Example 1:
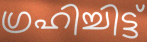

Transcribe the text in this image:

ഗ്രഹിച്ചിട്ട്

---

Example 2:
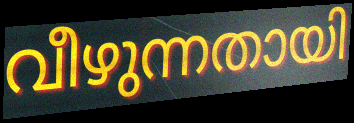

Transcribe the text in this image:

വീഴുന്നതായി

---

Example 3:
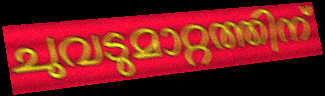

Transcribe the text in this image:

ചുവടുമാറ്റത്തിന്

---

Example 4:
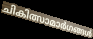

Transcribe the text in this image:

ചികിത്സാമാർഗങ്ങൾ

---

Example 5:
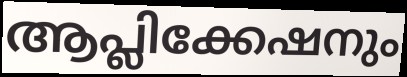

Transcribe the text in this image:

ആപ്ലിക്കേഷനും